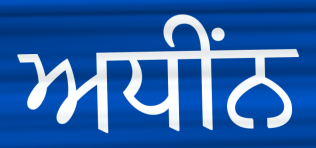
ਅਧੀਂਨ